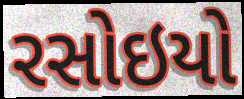
રસોઇયો